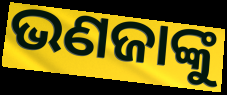
ଭଣଜାଙ୍କୁ